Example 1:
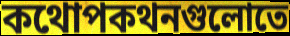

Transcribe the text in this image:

কথোপকথনগুলোতে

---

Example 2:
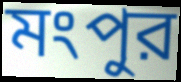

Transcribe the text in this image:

মংপুর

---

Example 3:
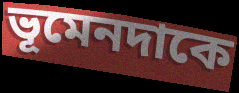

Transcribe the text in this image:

ভূমেনদাকে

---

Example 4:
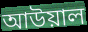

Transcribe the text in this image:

আউয়াল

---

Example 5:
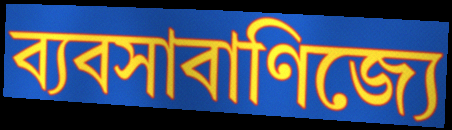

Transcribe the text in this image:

ব্যবসাবাণিজ্যে